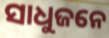
ସାଧୁଜନେ